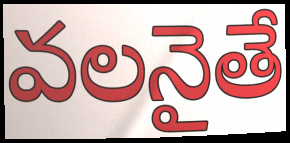
వలనైతే